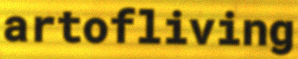
artofliving